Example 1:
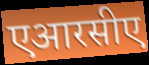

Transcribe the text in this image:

एआरसीए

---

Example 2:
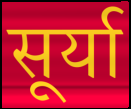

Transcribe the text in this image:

सूर्या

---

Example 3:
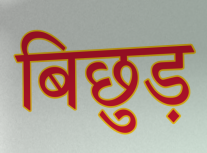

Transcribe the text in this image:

बिछुड़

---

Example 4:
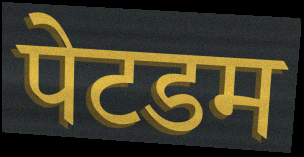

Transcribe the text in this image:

पेटडम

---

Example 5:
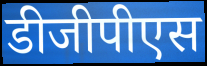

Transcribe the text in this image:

डीजीपीएस